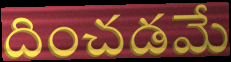
దించడమే